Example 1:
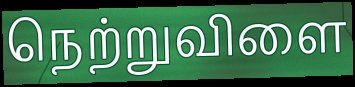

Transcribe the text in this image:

நெற்றுவிளை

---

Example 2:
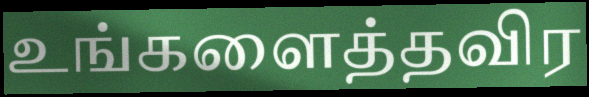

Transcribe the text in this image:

உங்களைத்தவிர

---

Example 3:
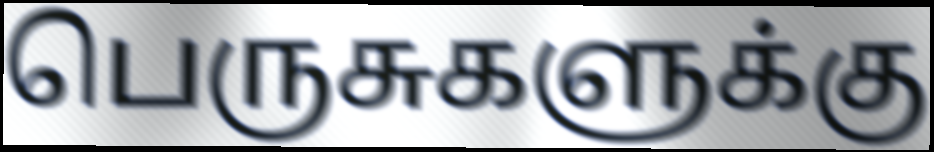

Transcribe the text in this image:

பெருசுகளுக்கு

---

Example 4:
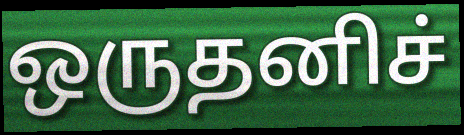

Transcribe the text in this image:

ஒருதனிச்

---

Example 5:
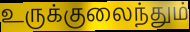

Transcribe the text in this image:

உருக்குலைந்தும்